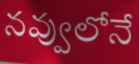
నవ్వులోనే